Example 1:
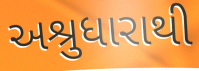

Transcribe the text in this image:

અશ્રુધારાથી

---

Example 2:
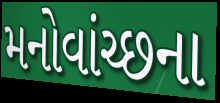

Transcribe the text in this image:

મનોવાંચ્છના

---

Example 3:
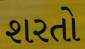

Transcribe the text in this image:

શરતો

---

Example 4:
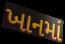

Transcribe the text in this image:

ખાનમાં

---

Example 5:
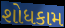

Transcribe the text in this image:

શોધકામ